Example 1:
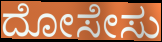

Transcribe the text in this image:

ದೋಸೇಸು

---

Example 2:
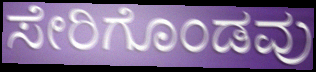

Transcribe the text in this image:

ಸೇರಿಗೊಂಡವು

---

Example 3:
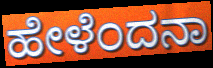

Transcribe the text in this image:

ಹೇಳೆಂದನಾ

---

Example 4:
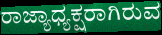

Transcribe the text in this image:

ರಾಜ್ಯಾಧ್ಯಕ್ಷರಾಗಿರುವ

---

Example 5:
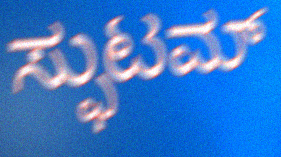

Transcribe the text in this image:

ಸ್ಫುಟಮ್